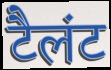
टैलंट